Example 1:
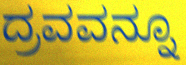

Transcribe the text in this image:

ದ್ರವವನ್ನೂ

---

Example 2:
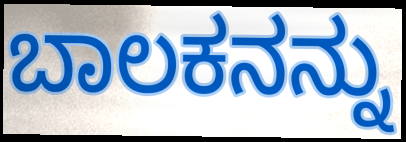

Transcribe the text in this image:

ಬಾಲಕನನ್ನು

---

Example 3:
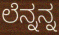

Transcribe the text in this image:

ಲೆನ್ನನ್ನ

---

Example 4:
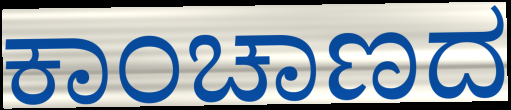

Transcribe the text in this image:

ಕಾಂಚಾಣದ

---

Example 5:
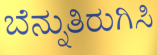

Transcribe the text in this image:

ಬೆನ್ನುತಿರುಗಿಸಿ